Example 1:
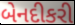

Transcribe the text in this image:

બેનદીકરી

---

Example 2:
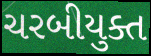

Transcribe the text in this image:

ચરબીયુક્ત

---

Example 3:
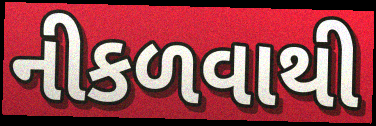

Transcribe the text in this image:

નીકળવાથી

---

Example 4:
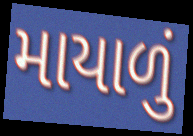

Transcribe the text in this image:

માયાળું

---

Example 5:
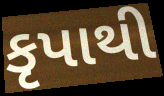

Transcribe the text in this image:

કૃપાથી